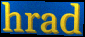
hrad